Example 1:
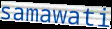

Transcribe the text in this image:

samawati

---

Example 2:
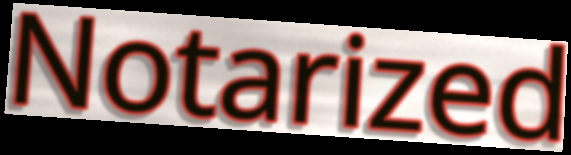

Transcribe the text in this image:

Notarized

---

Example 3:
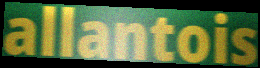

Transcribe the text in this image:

allantois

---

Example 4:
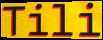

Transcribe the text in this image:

Tili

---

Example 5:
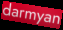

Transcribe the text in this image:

darmyan